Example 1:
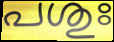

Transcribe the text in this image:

പശുഃ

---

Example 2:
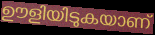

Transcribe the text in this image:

ഊളിയിടുകയാണ്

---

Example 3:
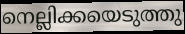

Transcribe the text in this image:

നെല്ലിക്കയെടുത്തു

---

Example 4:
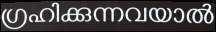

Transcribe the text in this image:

ഗ്രഹിക്കുന്നവയാൽ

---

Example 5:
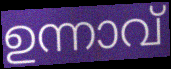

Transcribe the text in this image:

ഉന്നാവ്